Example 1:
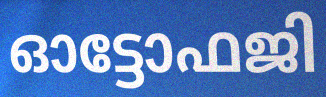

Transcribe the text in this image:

ഓട്ടോഫജി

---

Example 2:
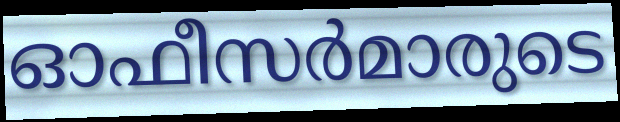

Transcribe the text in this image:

ഓഫീസർമാരുടെ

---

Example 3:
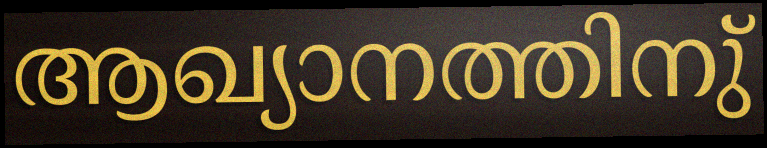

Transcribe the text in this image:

ആഖ്യാനത്തിനു്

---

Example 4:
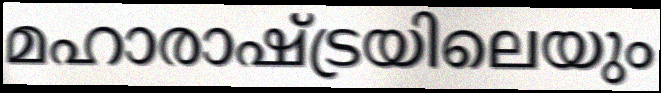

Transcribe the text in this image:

മഹാരാഷ്ട്രയിലെയും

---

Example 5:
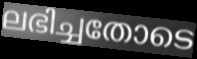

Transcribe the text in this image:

ലഭിച്ചതോടെ